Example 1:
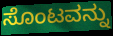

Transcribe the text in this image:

ಸೊಂಟವನ್ನು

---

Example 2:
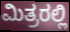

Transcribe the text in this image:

ಮಿತ್ರರಲ್ಲಿ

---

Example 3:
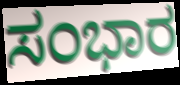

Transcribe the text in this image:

ಸಂಭಾರ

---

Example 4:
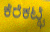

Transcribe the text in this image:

ಕೆರೆಕಟ್ಟೆ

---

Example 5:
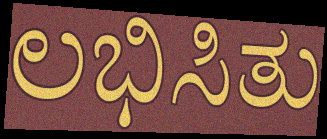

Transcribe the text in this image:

ಲಭಿಸಿತು